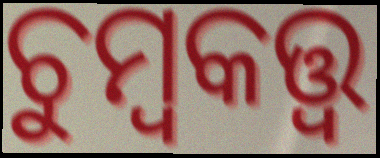
ଚୁମ୍ବକତ୍ତ୍ୱ